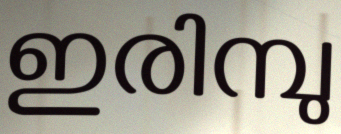
ഇരിമ്പു